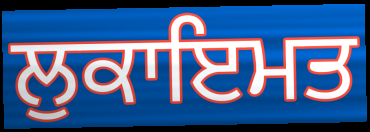
ਲੁਕਾਇਮਤ